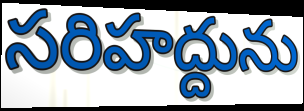
సరిహద్దును